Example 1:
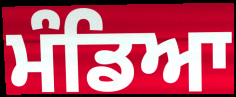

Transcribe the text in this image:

ਮੰਡਿਆ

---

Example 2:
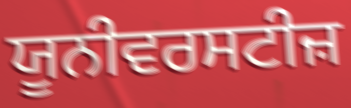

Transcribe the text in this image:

ਯੂਨੀਵਰਸਟੀਜ਼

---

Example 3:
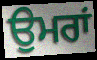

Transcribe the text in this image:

ਉੁਮਰਾਂ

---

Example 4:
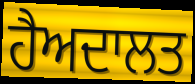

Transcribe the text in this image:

ਹੈਅਦਾਲਤ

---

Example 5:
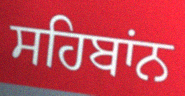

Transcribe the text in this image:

ਸਹਿਬਾਂਨ